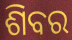
ଶିବର